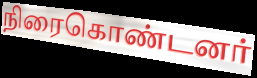
நிரைகொண்டனர்